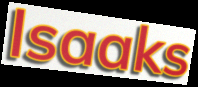
Isaaks